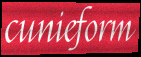
cunieform